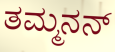
ತಮ್ಮನನ್